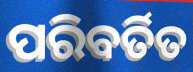
ପରିବର୍ତିତ